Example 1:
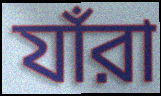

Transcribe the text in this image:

যাঁরা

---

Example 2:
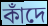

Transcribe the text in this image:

কাঁদে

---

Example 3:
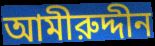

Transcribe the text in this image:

আমীরুদ্দীন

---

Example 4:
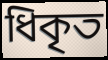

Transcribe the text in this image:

ধিকৃত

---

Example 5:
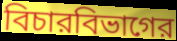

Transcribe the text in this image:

বিচারবিভাগের